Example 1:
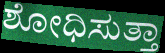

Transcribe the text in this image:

ಶೋಧಿಸುತ್ತಾ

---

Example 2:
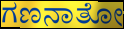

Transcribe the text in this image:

ಗಣನಾತೋ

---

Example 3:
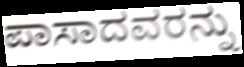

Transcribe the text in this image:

ಪಾಸಾದವರನ್ನು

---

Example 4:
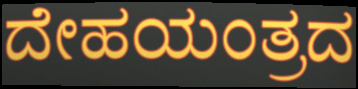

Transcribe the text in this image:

ದೇಹಯಂತ್ರದ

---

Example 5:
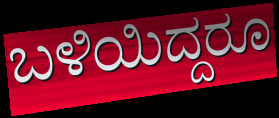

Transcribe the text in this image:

ಬಳಿಯಿದ್ದರೂ